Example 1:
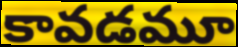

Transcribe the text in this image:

కావడమూ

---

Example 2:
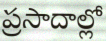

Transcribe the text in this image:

ప్రసాదాల్లో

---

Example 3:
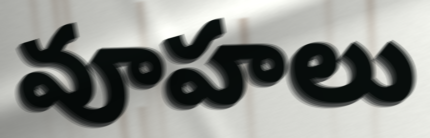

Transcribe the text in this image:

వూహలు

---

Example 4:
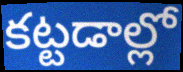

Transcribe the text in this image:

కట్టడాల్లో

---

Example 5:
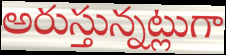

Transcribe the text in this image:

అరుస్తున్నట్లుగా